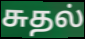
சுதல்